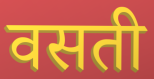
वसती